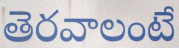
తెరవాలంటే